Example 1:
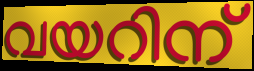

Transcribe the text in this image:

വയറിന്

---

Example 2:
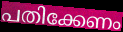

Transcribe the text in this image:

പതിക്കേണം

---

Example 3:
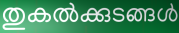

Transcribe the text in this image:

തുകൽക്കുടങ്ങൾ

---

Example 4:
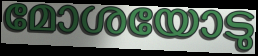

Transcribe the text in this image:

മോശയോടു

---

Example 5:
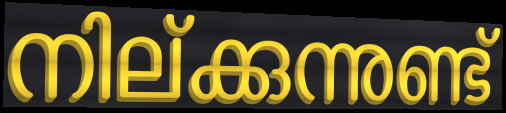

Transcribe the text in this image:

നില്ക്കുന്നുണ്ട്